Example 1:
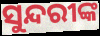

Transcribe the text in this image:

ସୁନ୍ଦରୀଙ୍କ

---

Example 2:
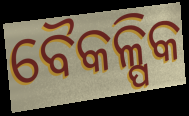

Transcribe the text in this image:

ବୈକଳ୍ପିକ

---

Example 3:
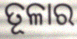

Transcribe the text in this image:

ତୂଳାର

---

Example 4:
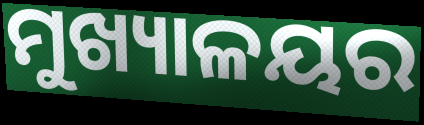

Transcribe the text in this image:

ମୁଖ୍ୟାଳୟର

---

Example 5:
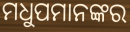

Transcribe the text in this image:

ମଧୁପମାନଙ୍କର